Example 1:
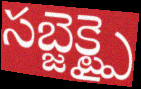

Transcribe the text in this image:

సబ్జెక్ట్పై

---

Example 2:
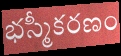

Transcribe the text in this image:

భస్మీకరణం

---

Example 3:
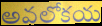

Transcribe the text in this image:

అవలోకయ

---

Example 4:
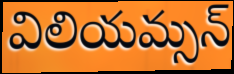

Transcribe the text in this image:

విలియమ్సన్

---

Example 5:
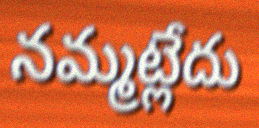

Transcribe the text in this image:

నమ్మట్లేదు